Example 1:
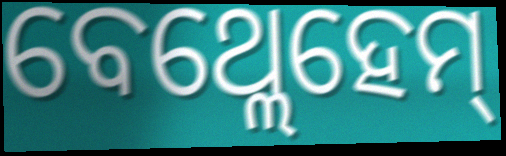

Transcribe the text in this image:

ବେଥ୍ଲେହେମ୍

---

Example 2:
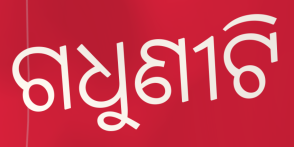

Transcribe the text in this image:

ଗଧୁଣୀଟି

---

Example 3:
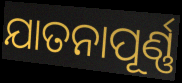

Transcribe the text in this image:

ଯାତନାପୂର୍ଣ୍ଣ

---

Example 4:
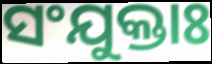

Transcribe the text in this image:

ସଂଯୁକ୍ତାଃ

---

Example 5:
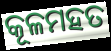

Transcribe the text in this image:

କୂଳମହତ